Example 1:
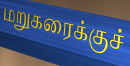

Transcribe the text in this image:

மறுகரைக்குச்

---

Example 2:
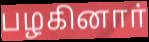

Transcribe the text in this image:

பழகினார்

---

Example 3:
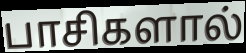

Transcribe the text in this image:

பாசிகளால்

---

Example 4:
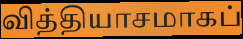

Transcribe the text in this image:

வித்தியாசமாகப்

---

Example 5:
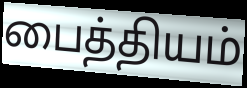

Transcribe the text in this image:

பைத்தியம்